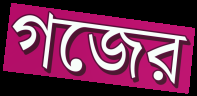
গজের